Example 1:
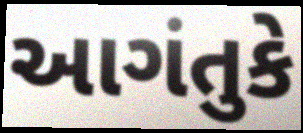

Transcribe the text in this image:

આગંતુકે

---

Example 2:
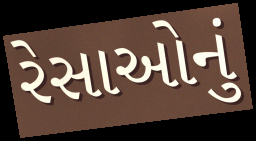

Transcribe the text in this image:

રેસાઓનું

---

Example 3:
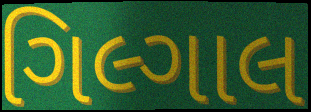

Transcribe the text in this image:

ગિલ્ગાલ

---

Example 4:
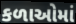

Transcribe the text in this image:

કળાઓમાં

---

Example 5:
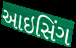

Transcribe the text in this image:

આઇસિંગ